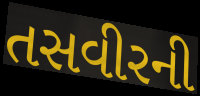
તસવીરની